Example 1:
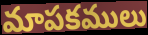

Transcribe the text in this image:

మాపకములు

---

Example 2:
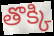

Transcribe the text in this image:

తొక్కి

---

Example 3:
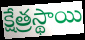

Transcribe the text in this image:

క్షేత్రస్థాయి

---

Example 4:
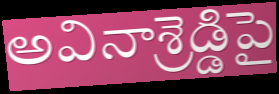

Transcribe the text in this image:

అవినాశ్రెడ్డిపై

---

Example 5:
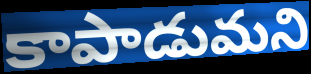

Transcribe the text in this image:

కాపాడుమని